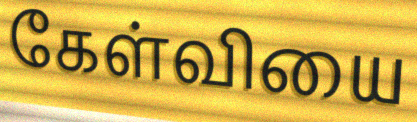
கேள்வியை